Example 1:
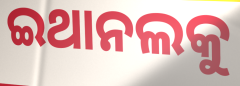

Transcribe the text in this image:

ଇଥାନଲକୁ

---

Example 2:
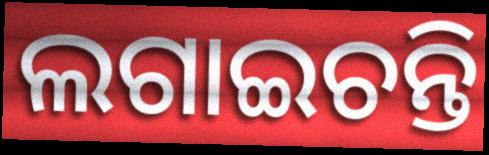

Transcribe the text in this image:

ଲଗାଇଚନ୍ତି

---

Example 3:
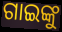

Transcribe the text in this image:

ଗାଇଙ୍କୁ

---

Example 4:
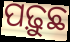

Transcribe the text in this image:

ପଢ଼ୁଛ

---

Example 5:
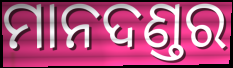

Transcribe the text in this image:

ମାନଦଣ୍ଡର